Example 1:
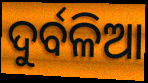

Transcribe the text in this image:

ଦୁର୍ବଳିଆ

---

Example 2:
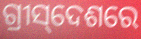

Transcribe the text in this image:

ଗ୍ରୀସ୍‌ଦେଶରେ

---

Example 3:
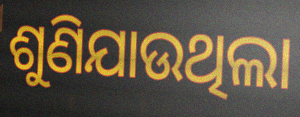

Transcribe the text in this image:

ଶୁଣିଯାଉଥିଲା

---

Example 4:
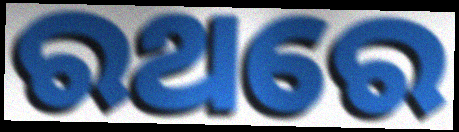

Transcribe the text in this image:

ରଥରେ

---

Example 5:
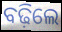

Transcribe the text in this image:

ବଢ଼ିଲେ